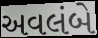
અવલંબે